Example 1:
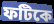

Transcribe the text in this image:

ফটিকে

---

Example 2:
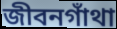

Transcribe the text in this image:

জীবনগাঁথা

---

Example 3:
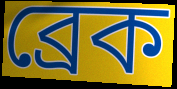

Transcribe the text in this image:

ব্রেক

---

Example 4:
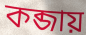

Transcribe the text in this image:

কব্জায়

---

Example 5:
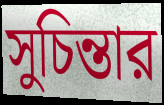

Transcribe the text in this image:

সুচিন্তার